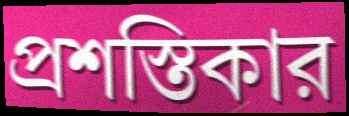
প্রশস্তিকার